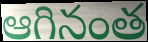
ఆగినంత